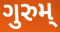
ગુરુમ્